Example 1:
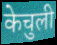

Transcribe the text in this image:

केचुली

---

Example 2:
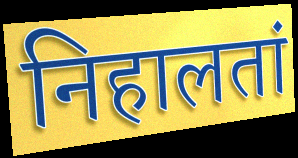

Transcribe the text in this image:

निहालतां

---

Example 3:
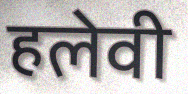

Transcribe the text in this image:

हलेवी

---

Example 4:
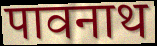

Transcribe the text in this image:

पावनाथ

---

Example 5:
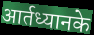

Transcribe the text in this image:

आर्तध्यानके